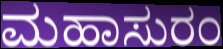
ಮಹಾಸುರಂ